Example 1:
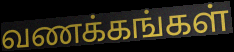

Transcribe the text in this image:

வணக்கங்கள்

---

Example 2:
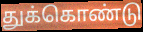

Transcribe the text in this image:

துக்கொண்டு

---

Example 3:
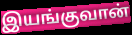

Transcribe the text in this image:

இயங்குவான்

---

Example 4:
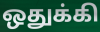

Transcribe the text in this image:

ஒதுக்கி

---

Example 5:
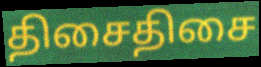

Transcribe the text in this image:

திசைதிசை